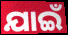
ଯାଇଁ